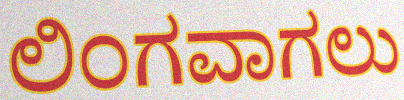
ಲಿಂಗವಾಗಲು